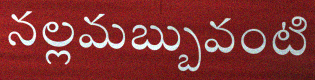
నల్లమబ్బువంటి